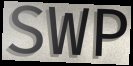
SWP